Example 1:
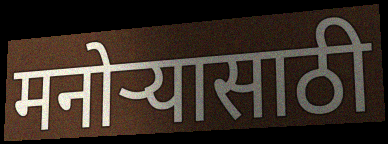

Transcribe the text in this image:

मनोऱ्यासाठी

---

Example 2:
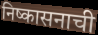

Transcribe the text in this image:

निष्कासनाची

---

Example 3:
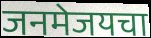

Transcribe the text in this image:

जनमेजयचा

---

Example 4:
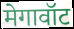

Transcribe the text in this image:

मेगावॉट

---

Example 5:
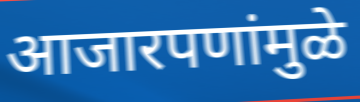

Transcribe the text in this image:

आजारपणांमुळे